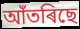
আঁতৰিছে